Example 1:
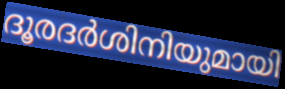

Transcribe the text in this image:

ദൂരദർശിനിയുമായി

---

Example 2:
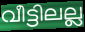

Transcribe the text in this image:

വീട്ടിലല്ല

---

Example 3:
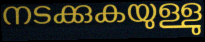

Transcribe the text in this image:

നടക്കുകയുള്ളു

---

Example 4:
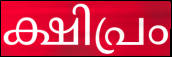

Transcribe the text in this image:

ക്ഷിപ്രം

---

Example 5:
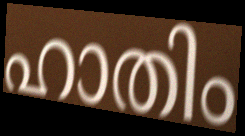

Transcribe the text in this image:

ഹാതിം